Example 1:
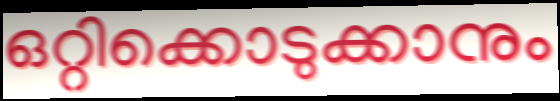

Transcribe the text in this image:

ഒറ്റിക്കൊടുക്കാനും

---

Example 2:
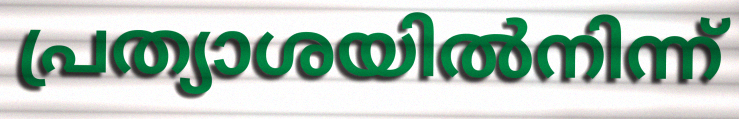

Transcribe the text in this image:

പ്രത്യാശയിൽനിന്ന്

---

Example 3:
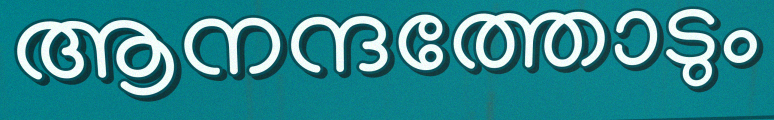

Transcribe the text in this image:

ആനന്ദത്തോടും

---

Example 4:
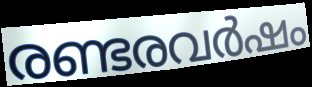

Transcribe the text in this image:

രണ്ടരവർഷം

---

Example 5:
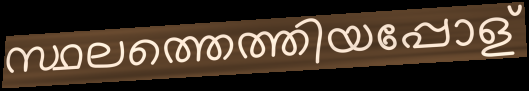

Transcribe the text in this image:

സ്ഥലത്തെത്തിയപ്പോള്